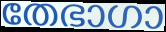
തേഭാഗാ